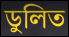
ডুলিত